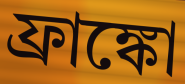
ফ্রাঙ্কো